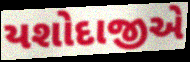
યશોદાજીએ